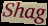
Shag